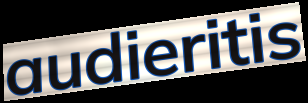
audieritis